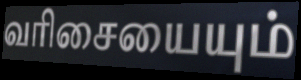
வரிசையையும்